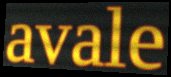
avale